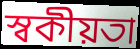
স্বকীয়তা